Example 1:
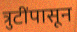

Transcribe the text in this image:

त्रुटींपासून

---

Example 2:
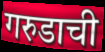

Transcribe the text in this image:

गरुडाची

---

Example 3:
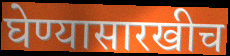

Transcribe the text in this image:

घेण्यासारखीच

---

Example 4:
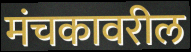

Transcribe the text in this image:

मंचकावरील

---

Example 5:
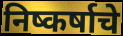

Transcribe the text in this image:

निष्कर्षाचे